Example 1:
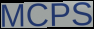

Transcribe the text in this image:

MCPS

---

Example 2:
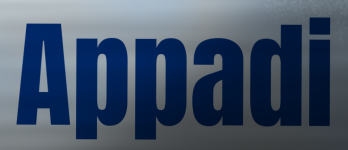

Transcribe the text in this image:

Appadi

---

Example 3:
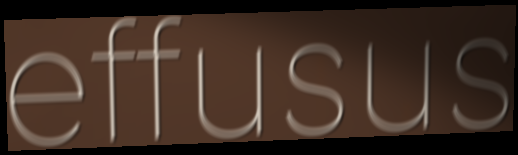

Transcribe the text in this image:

effusus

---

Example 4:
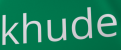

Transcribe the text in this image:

khude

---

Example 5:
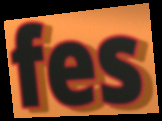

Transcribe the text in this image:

fes